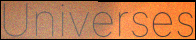
Universes